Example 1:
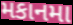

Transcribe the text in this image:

મકાનમા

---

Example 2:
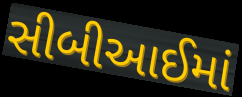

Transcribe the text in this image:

સીબીઆઈમાં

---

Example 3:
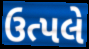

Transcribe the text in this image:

ઉત્પલે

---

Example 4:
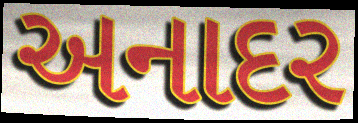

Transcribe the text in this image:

અનાદર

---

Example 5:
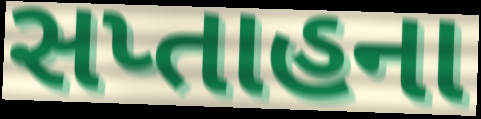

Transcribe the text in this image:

સપ્તાહના